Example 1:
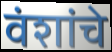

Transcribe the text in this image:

वंशांचे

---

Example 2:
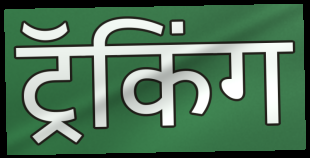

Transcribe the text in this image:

ट्रॅकिंग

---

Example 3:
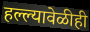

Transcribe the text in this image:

हल्ल्यावेळीही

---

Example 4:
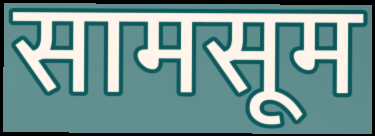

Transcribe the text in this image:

सामसूम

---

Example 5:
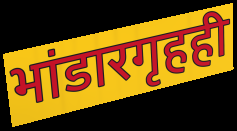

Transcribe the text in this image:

भांडारगृहही